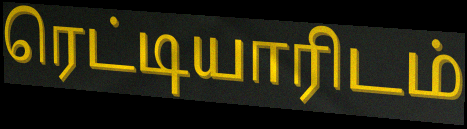
ரெட்டியாரிடம்